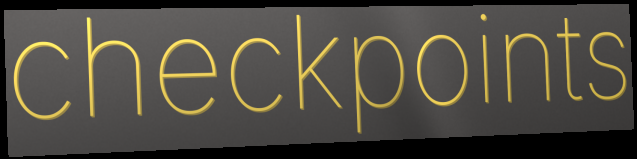
checkpoints